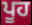
ਪੂਹ